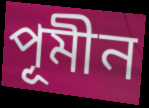
পূমীন